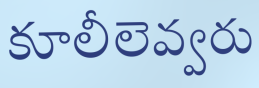
కూలీలెవ్వరు